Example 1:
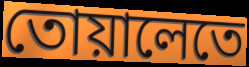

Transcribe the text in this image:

তোয়ালেতে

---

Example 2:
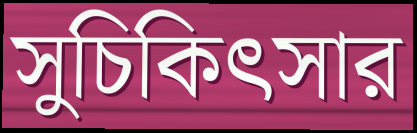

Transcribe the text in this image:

সুচিকিৎসার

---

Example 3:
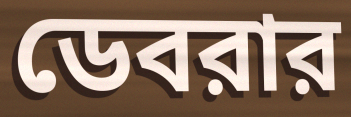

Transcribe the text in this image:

ডেবরার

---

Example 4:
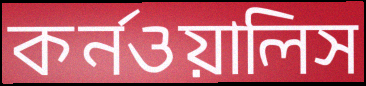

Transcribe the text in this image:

কর্নওয়ালিস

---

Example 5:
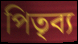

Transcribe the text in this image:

পিতৃব্য